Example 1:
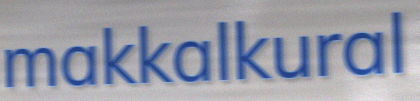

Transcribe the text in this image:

makkalkural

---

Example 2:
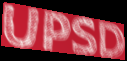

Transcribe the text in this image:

UPSD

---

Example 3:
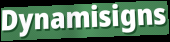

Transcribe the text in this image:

Dynamisigns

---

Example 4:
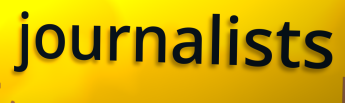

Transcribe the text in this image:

journalists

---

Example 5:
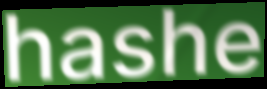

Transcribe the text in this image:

hashe